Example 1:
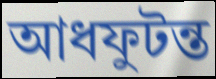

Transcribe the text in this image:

আধফুটন্ত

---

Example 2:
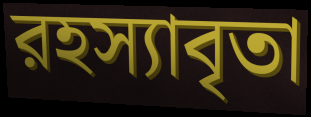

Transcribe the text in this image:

রহস্যাবৃতা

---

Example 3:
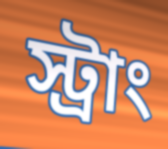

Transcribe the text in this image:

স্ট্রাং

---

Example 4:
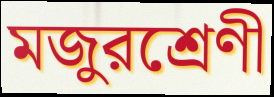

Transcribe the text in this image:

মজুরশ্রেণী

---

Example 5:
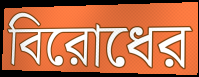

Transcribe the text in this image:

বিরোধের